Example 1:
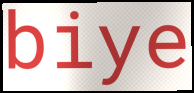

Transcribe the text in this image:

biye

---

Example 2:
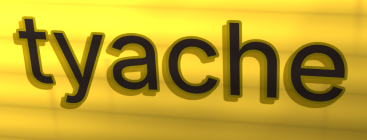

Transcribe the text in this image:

tyache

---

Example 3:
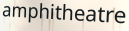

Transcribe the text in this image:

amphitheatre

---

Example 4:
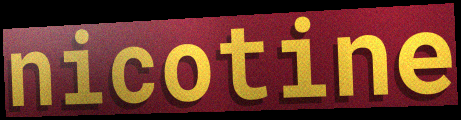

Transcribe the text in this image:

nicotine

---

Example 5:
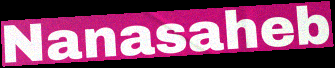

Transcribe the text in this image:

Nanasaheb